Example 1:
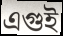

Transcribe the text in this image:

এগুই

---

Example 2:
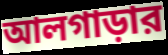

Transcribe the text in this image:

আলগাড়ার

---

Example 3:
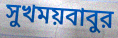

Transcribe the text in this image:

সুখময়বাবুর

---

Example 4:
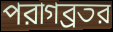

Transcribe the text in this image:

পরাগব্রতর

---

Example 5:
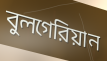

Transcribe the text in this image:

বুলগেরিয়ান